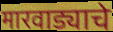
मारवाड्याचे